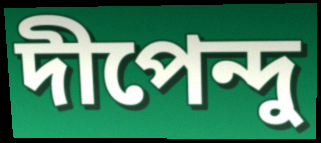
দীপেন্দু